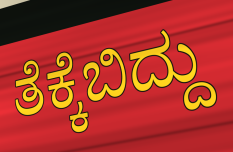
ತೆಕ್ಕೆಬಿದ್ದು